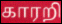
காரறி